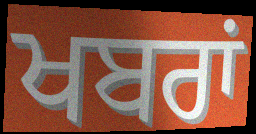
ਖਬਰਾਂ